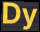
Dy